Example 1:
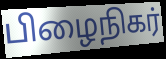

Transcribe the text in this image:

பிழைநிகர்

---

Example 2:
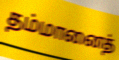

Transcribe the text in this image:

தம்மானைத்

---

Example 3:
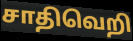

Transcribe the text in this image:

சாதிவெறி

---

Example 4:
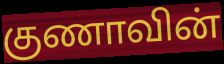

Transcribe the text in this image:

குணாவின்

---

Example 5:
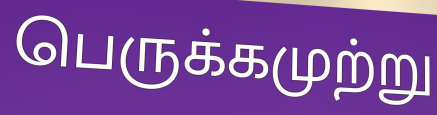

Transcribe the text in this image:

பெருக்கமுற்று